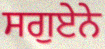
ਸਗੁਏਨੇ